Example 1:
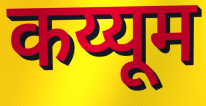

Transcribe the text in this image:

कय्यूम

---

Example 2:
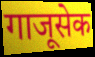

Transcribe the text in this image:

गाजूसेक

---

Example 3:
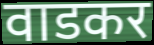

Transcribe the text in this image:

वाडकर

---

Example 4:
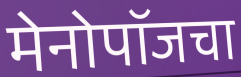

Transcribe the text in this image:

मेनोपॉजचा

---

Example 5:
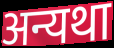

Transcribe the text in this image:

अन्यथा